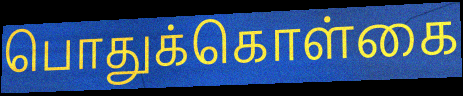
பொதுக்கொள்கை